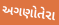
અગણોતેરા